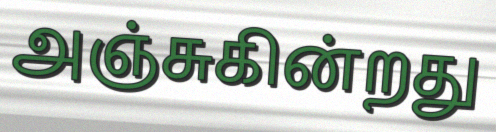
அஞ்சுகின்றது